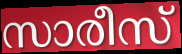
സാരീസ്